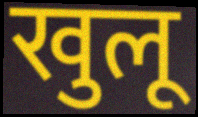
खुलू